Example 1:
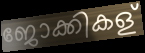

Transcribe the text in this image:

ജോക്കികള്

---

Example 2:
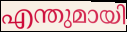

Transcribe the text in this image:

എന്തുമായി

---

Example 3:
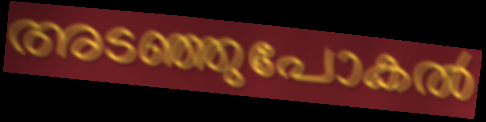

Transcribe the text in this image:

അടഞ്ഞുപോകൽ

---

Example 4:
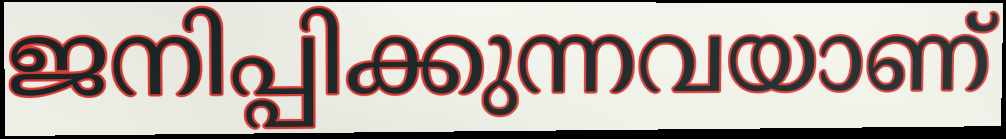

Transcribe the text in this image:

ജനിപ്പിക്കുന്നവയാണ്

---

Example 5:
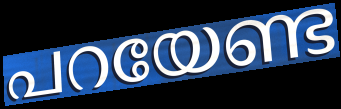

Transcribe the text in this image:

പറയേണ്ട